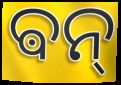
ଵନ୍